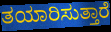
ತಯಾರಿಸುತ್ತಾರೆ